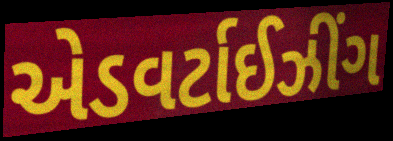
એડવર્ટાઈઝીંગ